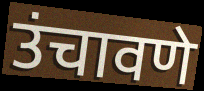
उंचावणे